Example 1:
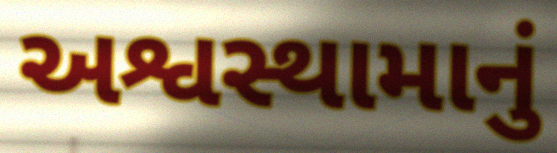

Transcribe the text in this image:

અશ્વસ્થામાનું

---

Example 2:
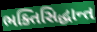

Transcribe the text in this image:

ભક્તિસિદ્ધાન્ત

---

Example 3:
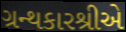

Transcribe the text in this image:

ગ્રન્થકારશ્રીએ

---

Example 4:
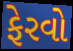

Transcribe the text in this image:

ફેરવો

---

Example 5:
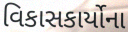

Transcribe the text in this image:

વિકાસકાર્યોના